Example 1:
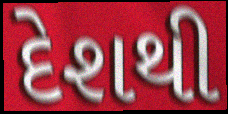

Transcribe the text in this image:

દેશથી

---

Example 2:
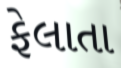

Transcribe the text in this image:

ફેલાતા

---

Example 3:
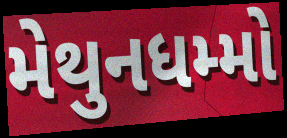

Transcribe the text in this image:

મેથુનધમ્મો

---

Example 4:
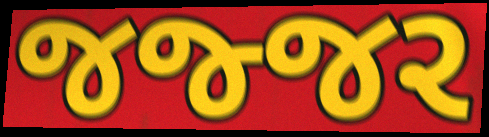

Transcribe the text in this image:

જજ્જર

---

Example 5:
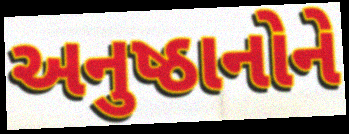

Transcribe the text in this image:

અનુષ્ઠાનોને